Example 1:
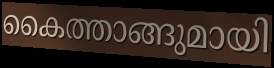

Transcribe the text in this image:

കൈത്താങ്ങുമായി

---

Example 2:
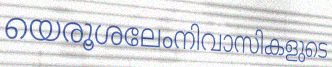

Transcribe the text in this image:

യെരൂശലേംനിവാസികളുടെ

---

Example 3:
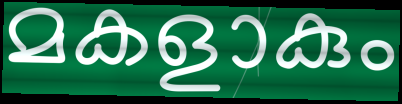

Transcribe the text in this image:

മകളാകും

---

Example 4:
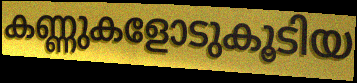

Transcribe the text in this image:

കണ്ണുകളോടുകൂടിയ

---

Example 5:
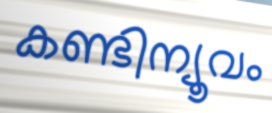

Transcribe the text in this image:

കണ്ടിന്യൂവം